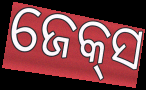
ଜେକ୍‍ସ